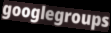
googlegroups